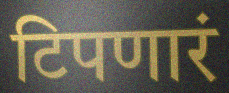
टिपणारं